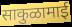
साकुळामाई